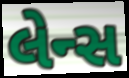
લેન્સ